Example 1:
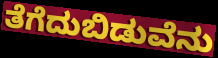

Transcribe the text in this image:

ತೆಗೆದುಬಿಡುವೆನು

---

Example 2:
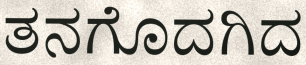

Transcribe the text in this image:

ತನಗೊದಗಿದ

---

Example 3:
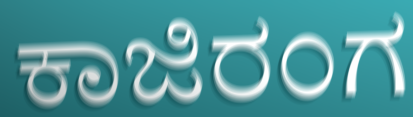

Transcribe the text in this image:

ಕಾಜಿರಂಗ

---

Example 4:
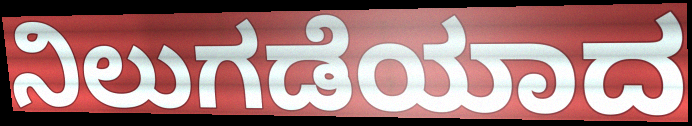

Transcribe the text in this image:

ನಿಲುಗಡೆಯಾದ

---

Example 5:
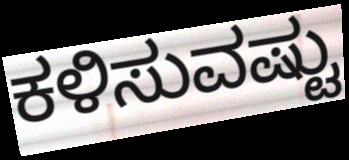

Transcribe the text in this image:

ಕಳಿಸುವಷ್ಟು